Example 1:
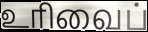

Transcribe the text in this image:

உரிவைப்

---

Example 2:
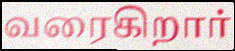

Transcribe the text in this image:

வரைகிறார்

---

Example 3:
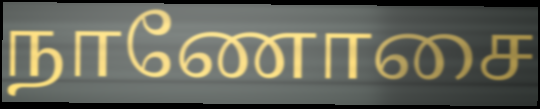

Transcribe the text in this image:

நாணோசை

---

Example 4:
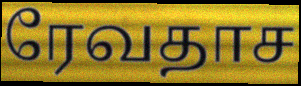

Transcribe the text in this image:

ரேவதாச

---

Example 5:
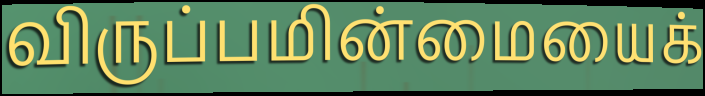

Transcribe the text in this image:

விருப்பமின்மையைக்